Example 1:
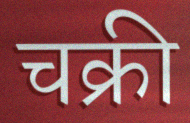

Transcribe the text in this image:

चक्री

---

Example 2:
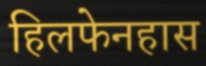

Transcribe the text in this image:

हिलफेनहास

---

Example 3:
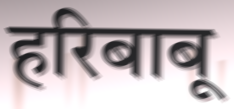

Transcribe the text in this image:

हरिबाबू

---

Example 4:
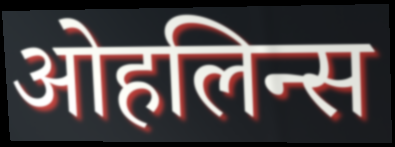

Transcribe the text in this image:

ओहलिन्स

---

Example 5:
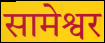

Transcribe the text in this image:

सामेश्वर